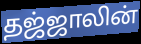
தஜ்ஜாலின்